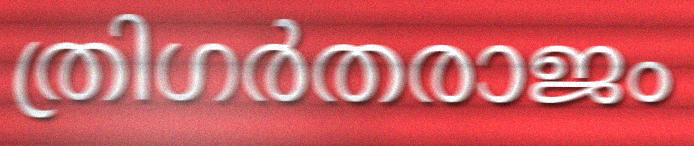
ത്രിഗർതരാജം